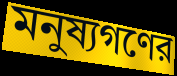
মনুষ্যগণের